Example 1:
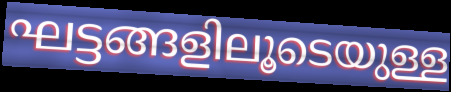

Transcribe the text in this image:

ഘട്ടങ്ങളിലൂടെയുള്ള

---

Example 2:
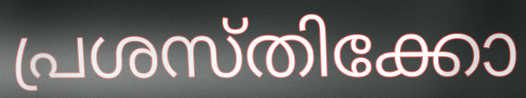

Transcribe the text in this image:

പ്രശസ്തിക്കോ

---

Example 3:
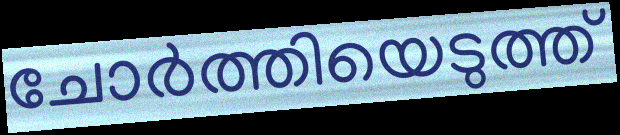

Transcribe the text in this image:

ചോർത്തിയെടുത്ത്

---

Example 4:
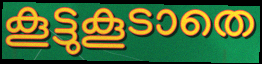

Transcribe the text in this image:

കൂട്ടുകൂടാതെ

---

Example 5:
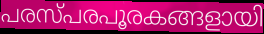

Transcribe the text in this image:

പരസ്പരപൂരകങ്ങളായി